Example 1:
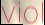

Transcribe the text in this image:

viol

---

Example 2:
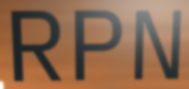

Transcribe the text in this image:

RPN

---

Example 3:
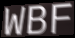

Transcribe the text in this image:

WBF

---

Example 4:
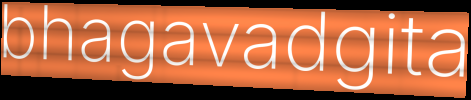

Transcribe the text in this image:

bhagavadgita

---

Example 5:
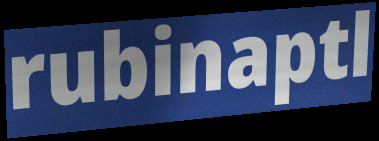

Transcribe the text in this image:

rubinaptl